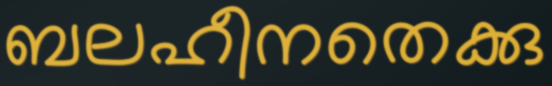
ബലഹീനതെക്കു